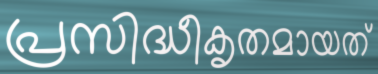
പ്രസിദ്ധീകൃതമായത്